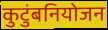
कुटुंबनियोजन